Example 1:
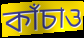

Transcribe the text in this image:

কাঁচাও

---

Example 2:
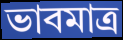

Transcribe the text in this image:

ভাবমাত্র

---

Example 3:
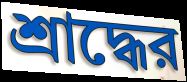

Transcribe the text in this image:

শ্রাদ্ধের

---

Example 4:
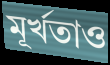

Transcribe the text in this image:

মূর্খতাও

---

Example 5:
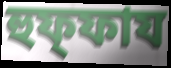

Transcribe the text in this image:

হুফ্ফায